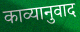
काव्यानुवाद